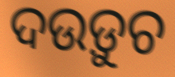
ଦଉଡ଼ୁଚ